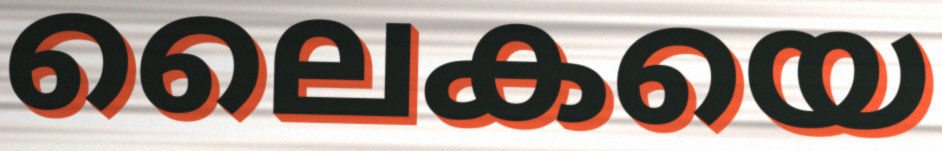
ലൈകയെ